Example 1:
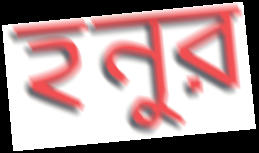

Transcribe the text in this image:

হনুর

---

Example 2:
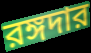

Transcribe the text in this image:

রঙ্গদার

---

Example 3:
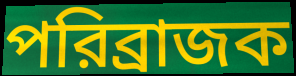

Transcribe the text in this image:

পরিব্রাজক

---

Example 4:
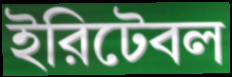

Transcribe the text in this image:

ইরিটেবল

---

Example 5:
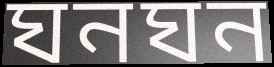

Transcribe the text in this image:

ঘনঘন